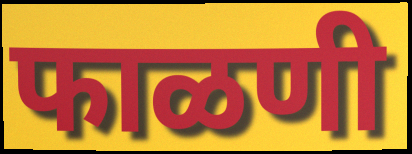
फाळणी